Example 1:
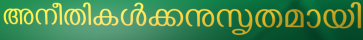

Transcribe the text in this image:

അനീതികൾക്കനുസൃതമായി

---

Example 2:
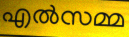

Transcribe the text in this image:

എൽസമ്മ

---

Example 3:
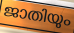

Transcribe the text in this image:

ജാതിയും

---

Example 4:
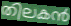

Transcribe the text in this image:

തിലകൻ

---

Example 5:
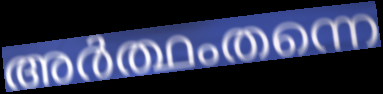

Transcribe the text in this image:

അർത്ഥംതന്നെ